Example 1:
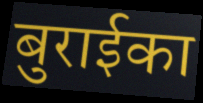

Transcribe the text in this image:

बुराईका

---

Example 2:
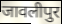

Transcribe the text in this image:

जावलीपुर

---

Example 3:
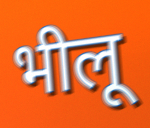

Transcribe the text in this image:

भीलू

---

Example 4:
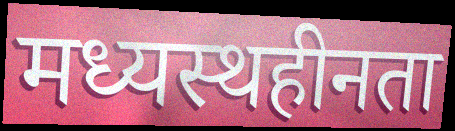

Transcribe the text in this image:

मध्यस्थहीनता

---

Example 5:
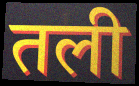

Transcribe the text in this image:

तली